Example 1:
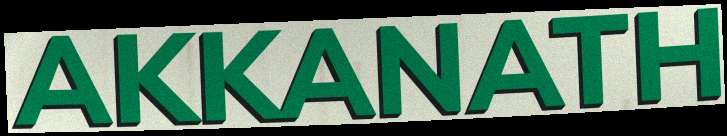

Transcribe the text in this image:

AKKANATH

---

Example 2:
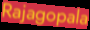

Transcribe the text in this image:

Rajagopala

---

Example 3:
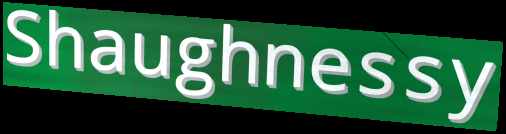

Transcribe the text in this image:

Shaughnessy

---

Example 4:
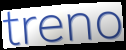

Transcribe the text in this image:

treno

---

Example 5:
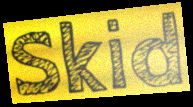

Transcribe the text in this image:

Skid